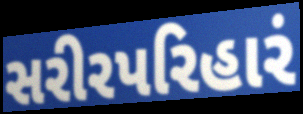
સરીરપરિહારં